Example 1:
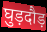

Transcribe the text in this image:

घुड़दौड़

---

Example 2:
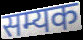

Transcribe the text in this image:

सम्‍यक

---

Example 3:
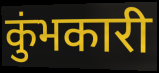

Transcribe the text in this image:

कुंभकारी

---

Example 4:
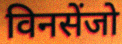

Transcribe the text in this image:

विनसेंजो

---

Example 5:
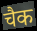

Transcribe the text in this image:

चैक